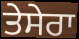
ਤੇਸੇਰਾ